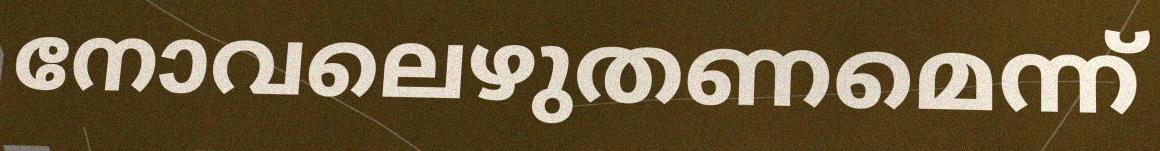
നോവലെഴുതണമെന്ന്